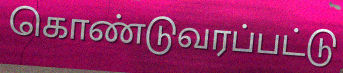
கொண்டுவரப்பட்டு